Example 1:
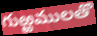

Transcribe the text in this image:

గుఱ్ఱములతొ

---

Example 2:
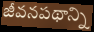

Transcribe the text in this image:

జీవనపథాన్ని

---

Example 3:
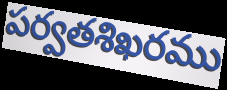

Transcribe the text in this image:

పర్వతశిఖరము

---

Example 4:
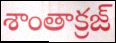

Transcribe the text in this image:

శాంతాక్రజ్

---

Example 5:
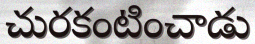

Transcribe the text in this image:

చురకంటించాడు